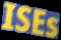
ISEs